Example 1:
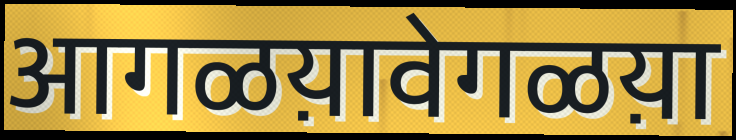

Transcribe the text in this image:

आगळय़ावेगळय़ा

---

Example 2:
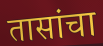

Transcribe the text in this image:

तासांचा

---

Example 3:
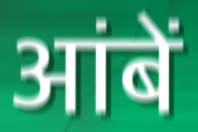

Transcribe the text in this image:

आंबें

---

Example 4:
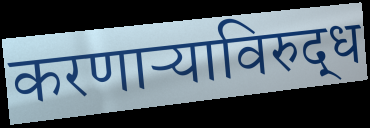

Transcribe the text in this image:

करणाऱ्याविरुद्ध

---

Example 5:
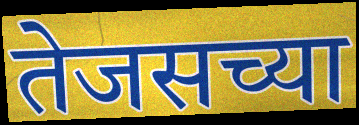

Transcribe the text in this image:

तेजसच्या